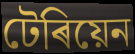
টেৰিয়েন